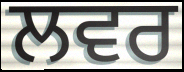
ਲਵਰ